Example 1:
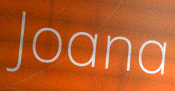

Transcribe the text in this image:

Joana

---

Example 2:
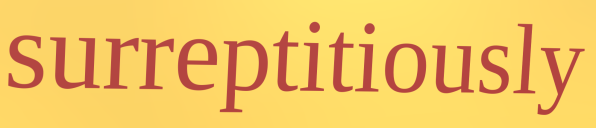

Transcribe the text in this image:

surreptitiously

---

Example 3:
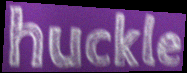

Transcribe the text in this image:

huckle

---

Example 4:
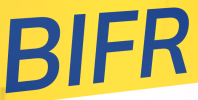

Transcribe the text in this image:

BIFR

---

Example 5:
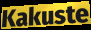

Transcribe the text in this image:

Kakuste